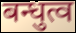
बन्धुत्व